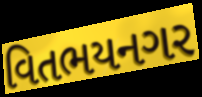
વિતભયનગર